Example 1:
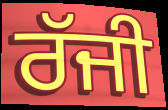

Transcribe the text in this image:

ਰੱਜੀ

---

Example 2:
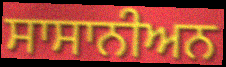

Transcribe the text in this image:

ਸਾਸਾਨੀਅਨ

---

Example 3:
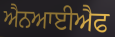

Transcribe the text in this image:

ਐਨਆਈਐਫ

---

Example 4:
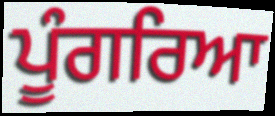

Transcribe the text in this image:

ਪੂੰਗਰਿਆ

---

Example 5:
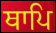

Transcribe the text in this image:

ਥਾਪਿ